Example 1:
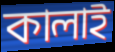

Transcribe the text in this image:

কালাই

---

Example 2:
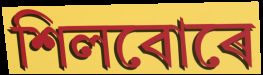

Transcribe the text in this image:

শিলবোৰে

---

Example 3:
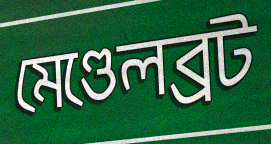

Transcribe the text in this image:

মেণ্ডেলব্ৰট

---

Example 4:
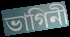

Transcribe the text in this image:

ভাগিনী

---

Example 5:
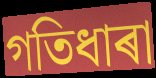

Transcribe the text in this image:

গতিধাৰা